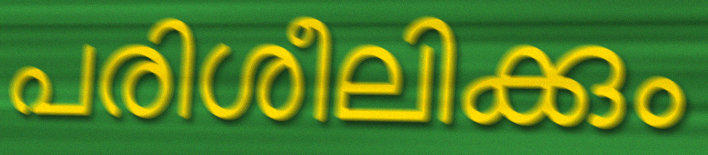
പരിശീലിക്കും